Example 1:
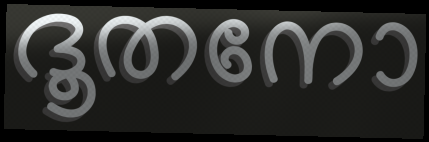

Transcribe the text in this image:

ദൂതനോ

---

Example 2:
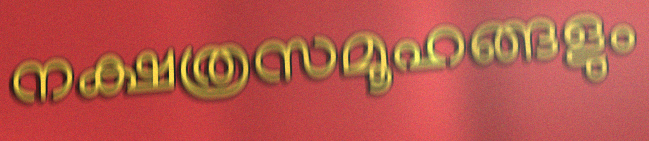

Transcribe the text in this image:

നക്ഷത്രസമൂഹങ്ങളും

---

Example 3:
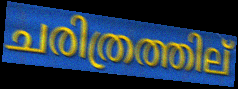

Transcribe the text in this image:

ചരിത്രത്തില്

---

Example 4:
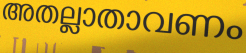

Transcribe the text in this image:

അതല്ലാതാവണം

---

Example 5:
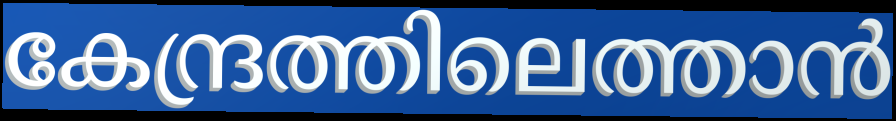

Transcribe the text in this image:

കേന്ദ്രത്തിലെത്താൻ